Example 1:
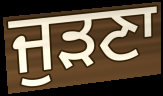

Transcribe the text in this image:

ਜੁੜਣਾ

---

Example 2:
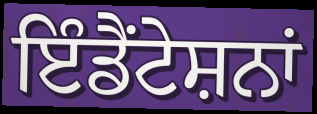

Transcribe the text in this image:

ਇੰਡੈਂਟੇਸ਼ਨਾਂ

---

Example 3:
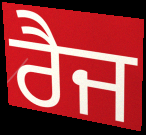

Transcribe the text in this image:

ਰੈਜ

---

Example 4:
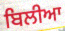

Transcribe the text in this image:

ਬਿਲੀਆ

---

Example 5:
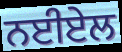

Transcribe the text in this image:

ਨਈਏਲ